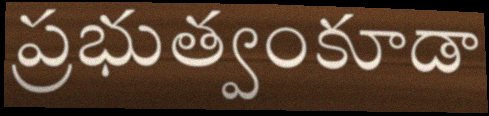
ప్రభుత్వంకూడా